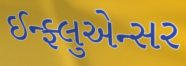
ઈન્ફ્લુએન્સર